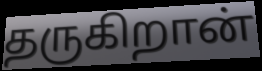
தருகிறான்